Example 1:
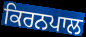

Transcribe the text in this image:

ਕਿਰਨਪਾਲ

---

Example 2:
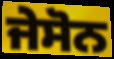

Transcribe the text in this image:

ਜੇਸੋਨ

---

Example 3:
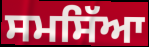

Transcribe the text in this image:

ਸਮਸਿੱਆ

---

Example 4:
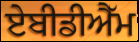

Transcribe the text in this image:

ਏਬੀਡੀਐੱਮ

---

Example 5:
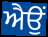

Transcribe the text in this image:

ਐਉਂ